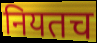
नियतच